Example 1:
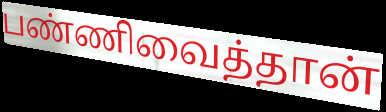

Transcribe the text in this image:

பண்ணிவைத்தான்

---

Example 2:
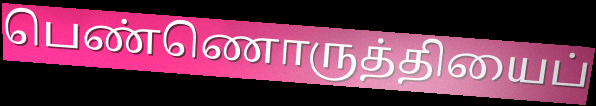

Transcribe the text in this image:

பெண்ணொருத்தியைப்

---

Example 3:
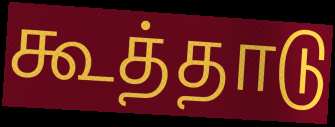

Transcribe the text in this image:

கூத்தாடு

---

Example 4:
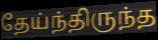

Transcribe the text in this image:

தேய்ந்திருந்த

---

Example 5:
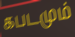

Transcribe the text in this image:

கபடமும்